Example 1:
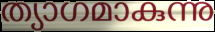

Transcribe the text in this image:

ത്യാഗമാകുന്നു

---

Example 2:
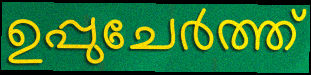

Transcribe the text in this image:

ഉപ്പുചേർത്ത്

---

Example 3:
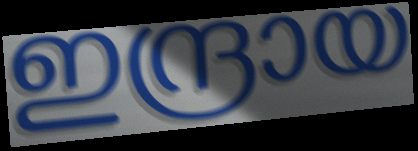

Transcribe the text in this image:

ഇന്ദ്രായ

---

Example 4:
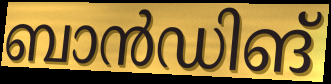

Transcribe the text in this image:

ബാൻഡിങ്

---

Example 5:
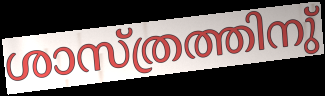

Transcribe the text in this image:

ശാസ്ത്രത്തിനു്